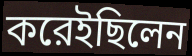
করেইছিলেন